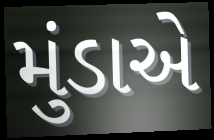
મુંડાએ